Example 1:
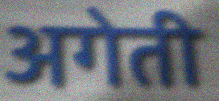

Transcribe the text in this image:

अगेती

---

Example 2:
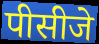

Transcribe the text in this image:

पीसीजे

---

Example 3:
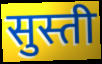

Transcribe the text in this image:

सुस्ती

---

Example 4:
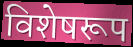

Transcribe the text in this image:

विशेषरूप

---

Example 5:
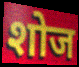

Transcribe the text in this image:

शोज